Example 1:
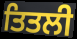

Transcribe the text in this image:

ਤਿਤਲੀ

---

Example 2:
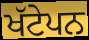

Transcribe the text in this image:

ਖੱਟੇਪਨ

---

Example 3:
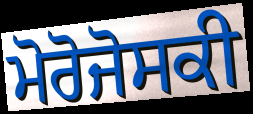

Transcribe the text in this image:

ਮੋਰੋਜੋਸਕੀ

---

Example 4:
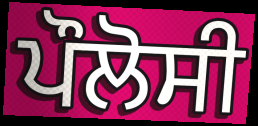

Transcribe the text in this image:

ਪੌਲੋਸੀ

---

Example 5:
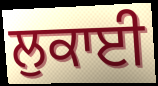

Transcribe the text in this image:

ਲੁਕਾਈ